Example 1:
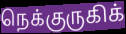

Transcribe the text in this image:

நெக்குருகிக்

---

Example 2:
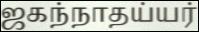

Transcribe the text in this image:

ஜகந்நாதய்யர்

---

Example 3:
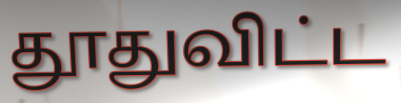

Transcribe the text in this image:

தூதுவிட்ட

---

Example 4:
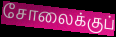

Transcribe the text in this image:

சோலைக்குப்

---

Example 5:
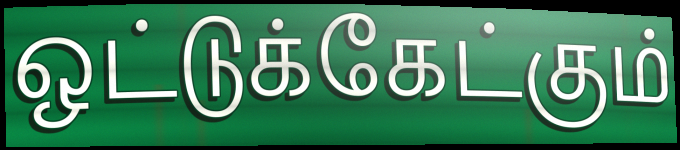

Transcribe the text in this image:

ஒட்டுக்கேட்கும்